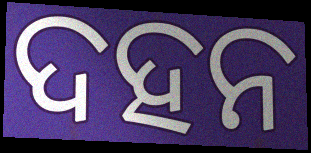
ଦହନ